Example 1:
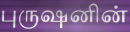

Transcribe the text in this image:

புருஷனின்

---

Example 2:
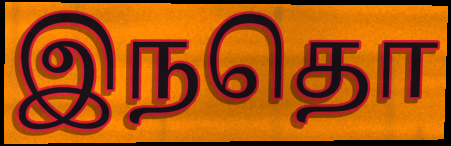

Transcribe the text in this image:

இநதொ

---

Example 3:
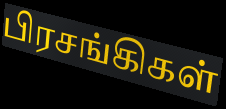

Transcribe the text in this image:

பிரசங்கிகள்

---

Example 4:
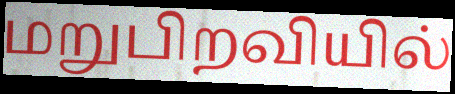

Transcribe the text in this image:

மறுபிறவியில்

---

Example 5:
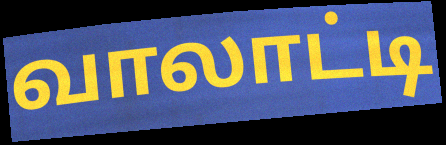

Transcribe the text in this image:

வாலாட்டி